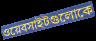
ওয়েবসাইটগুলোকে